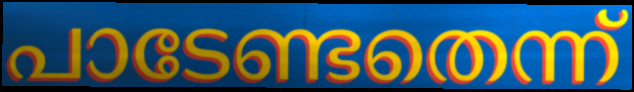
പാടേണ്ടതെന്ന്